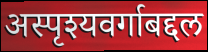
अस्पृश्यवर्गाबद्दल